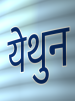
येथुन